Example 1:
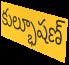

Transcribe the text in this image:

కుల్భూషణ్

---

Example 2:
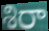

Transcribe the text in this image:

శిరా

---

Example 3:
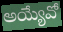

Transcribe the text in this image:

అయ్యేవో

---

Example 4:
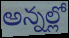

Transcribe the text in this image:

అన్నల్లో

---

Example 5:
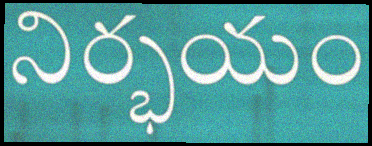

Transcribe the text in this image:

నిర్భయం